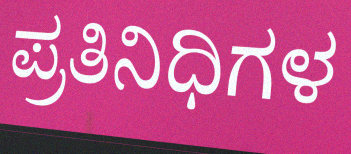
ಪ್ರತಿನಿಧಿಗಳ